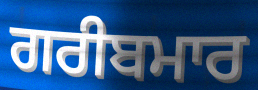
ਗਰੀਬਮਾਰ